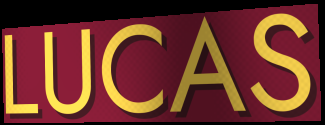
LUCAS